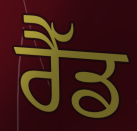
ਰੈੱਡ